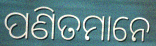
ପଣିତମାନେ